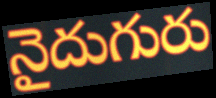
నైదుగురు